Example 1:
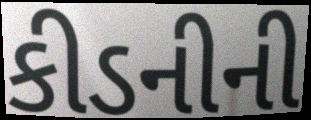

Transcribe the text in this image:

કીડનીની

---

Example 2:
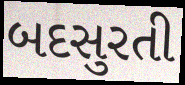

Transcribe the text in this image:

બદસુરતી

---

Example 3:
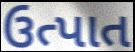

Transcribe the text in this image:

ઉત્પાત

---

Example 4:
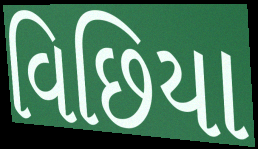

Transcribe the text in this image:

વિછિયા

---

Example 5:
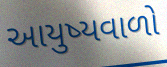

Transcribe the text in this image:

આયુષ્યવાળો